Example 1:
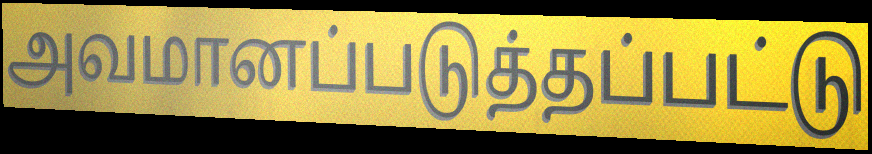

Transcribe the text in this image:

அவமானப்படுத்தப்பட்டு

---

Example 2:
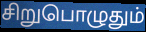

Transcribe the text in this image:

சிறுபொழுதும்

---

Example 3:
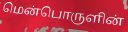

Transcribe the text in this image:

மென்பொருளின்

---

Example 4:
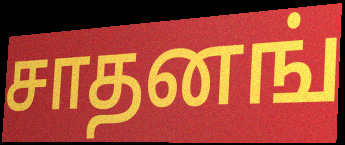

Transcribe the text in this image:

சாதனங்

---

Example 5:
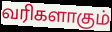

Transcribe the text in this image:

வரிகளாகும்